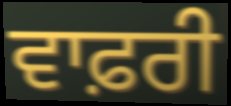
ਵਾਫ਼ਰੀ